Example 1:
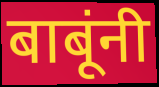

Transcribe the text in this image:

बाबूंनी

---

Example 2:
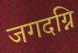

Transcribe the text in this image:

जगदग्नि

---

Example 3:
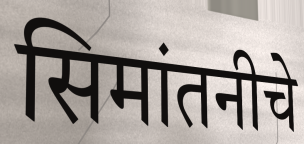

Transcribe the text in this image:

सिमांतनीचे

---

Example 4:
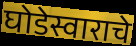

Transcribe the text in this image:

घोडेस्वाराचे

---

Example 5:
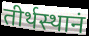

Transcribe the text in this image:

तीर्थस्थानं